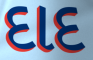
દાદ